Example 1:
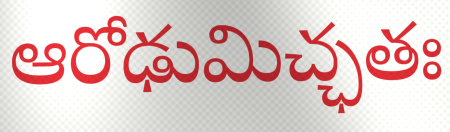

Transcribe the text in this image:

ఆరోఢుమిచ్ఛతః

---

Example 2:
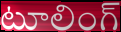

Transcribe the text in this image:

టూలింగ్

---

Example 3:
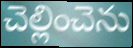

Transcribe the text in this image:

చెల్లించెను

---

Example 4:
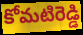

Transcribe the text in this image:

కోమటిరెడ్డి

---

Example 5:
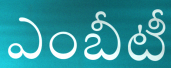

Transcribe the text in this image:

ఎంబీటీ